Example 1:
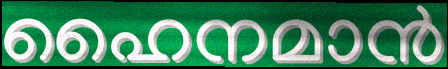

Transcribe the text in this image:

ഹൈനമാൻ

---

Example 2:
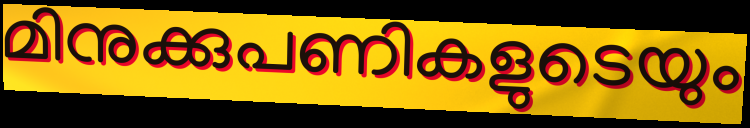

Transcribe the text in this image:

മിനുക്കുപണികളുടെയും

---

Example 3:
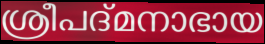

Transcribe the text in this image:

ശ്രീപദ്മനാഭായ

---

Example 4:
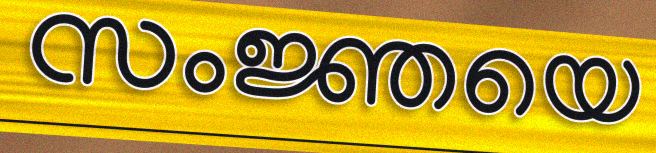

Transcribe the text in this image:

സംജ്ഞയെ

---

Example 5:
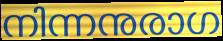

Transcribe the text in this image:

നിന്നനുരാഗ